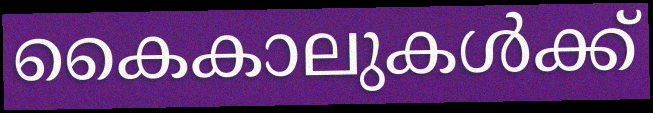
കൈകാലുകൾക്ക്